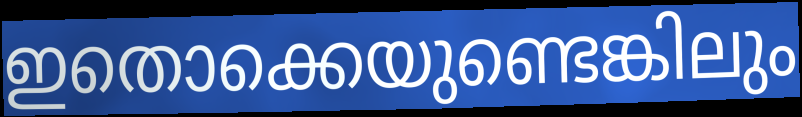
ഇതൊക്കെയുണ്ടെങ്കിലും